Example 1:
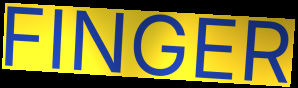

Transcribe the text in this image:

FINGER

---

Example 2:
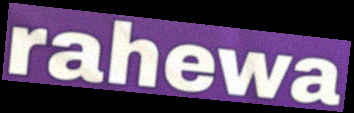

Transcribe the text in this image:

rahewa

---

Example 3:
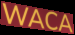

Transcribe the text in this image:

WACA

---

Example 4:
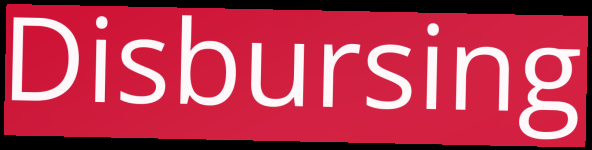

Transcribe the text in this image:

Disbursing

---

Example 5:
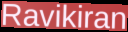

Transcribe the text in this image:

Ravikiran